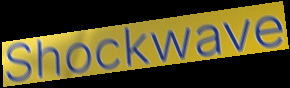
Shockwave